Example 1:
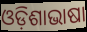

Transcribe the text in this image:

ଓଡ଼ିଶାଭାଷା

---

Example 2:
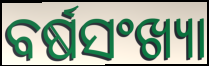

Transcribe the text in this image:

ବର୍ଷସଂଖ୍ୟା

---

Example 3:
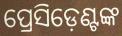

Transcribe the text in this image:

ପ୍ରେସିଡ଼େଣ୍ଟଙ୍କ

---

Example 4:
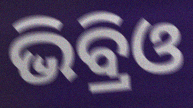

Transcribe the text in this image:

ଭିବ୍ରିଓ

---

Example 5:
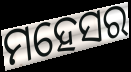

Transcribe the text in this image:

ମହେସର